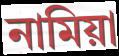
নামিয়া